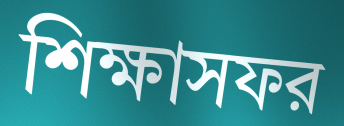
শিক্ষাসফর